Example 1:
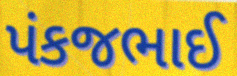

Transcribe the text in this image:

પંકજભાઈ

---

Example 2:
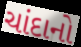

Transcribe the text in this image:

ચાંદાનો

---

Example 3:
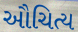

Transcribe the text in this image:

ઔચિત્ય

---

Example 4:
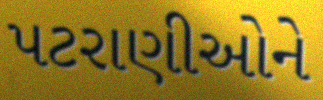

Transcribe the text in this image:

પટરાણીઓને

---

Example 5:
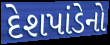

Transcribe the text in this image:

દેશપાંડેનો